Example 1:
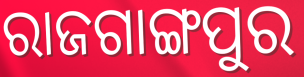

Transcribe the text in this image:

ରାଜଗାଙ୍ଗପୁର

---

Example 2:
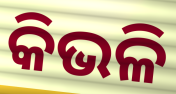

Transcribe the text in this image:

କିଭଳି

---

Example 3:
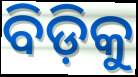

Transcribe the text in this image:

ବିଡ଼ିକୁ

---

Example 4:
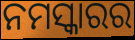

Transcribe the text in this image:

ନମସ୍କାରର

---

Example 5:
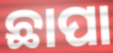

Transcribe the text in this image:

ଛାପା